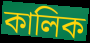
কালিক